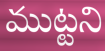
ముట్టని